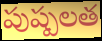
పుష్పలత